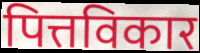
पित्तविकार